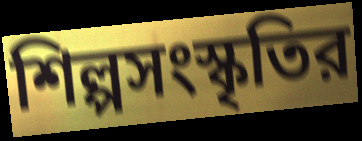
শিল্পসংস্কৃতির